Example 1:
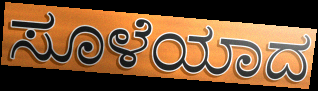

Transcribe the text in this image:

ಸೂಳೆಯಾದ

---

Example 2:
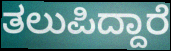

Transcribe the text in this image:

ತಲುಪಿದ್ದಾರೆ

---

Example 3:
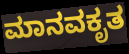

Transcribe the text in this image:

ಮಾನವಕೃತ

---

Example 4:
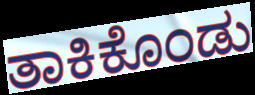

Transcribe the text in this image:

ತಾಕಿಕೊಂಡು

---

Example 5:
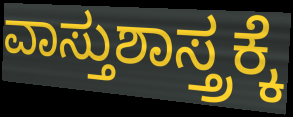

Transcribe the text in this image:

ವಾಸ್ತುಶಾಸ್ತ್ರಕ್ಕೆ